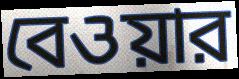
বেওয়ার